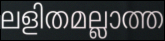
ലളിതമല്ലാത്ത